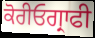
ਕੋਰੀਓਗ੍ਰਾਫੀ